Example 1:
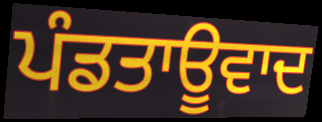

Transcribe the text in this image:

ਪੰਡਤਾਊਵਾਦ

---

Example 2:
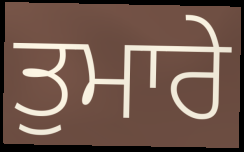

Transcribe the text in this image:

ਤੁਮਾਰੇ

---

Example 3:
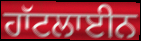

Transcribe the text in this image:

ਹਾੱਟਲਾਈਨ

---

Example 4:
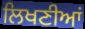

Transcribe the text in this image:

ਲਿਖਣੀਆਂ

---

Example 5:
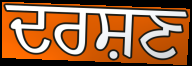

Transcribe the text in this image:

ਦਰਸ਼ਣ